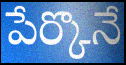
పేర్కొనే